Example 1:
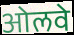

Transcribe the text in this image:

ओलवे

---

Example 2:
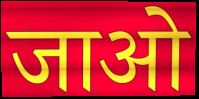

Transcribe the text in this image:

जाओ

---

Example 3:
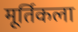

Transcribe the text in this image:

मूर्तिकला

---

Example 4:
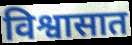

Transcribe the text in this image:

विश्वासात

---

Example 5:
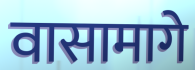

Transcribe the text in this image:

वासामागे